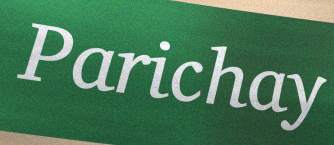
Parichay